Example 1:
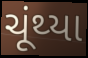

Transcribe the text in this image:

ચૂંથ્યા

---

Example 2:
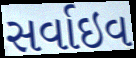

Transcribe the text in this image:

સર્વાઇવ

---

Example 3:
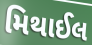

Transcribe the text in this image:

મિથાઈલ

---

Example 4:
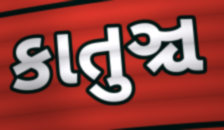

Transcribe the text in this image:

કાતુઞ્ચ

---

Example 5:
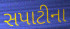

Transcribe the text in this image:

સપાટીના